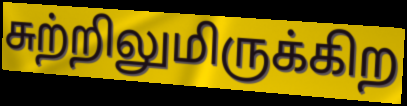
சுற்றிலுமிருக்கிற